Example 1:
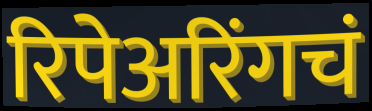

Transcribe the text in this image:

रिपेअरिंगचं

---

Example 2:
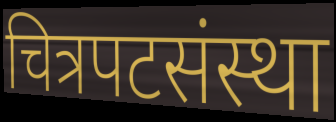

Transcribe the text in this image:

चित्रपटसंस्था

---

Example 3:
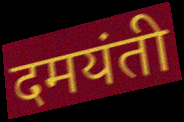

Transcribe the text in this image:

दमयंती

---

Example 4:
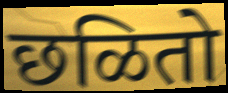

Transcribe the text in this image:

छळितो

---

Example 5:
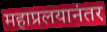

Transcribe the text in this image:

महाप्रलयानंतर